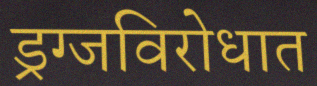
ड्रग्जविरोधात